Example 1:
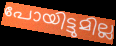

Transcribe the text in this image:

പോയിട്ടുമില്ല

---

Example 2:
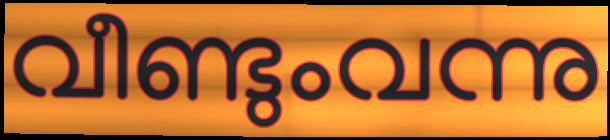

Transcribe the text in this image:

വീണ്ടുംവന്നു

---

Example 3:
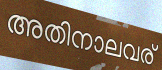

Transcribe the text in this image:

അതിനാലവര്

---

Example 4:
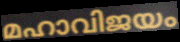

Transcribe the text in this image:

മഹാവിജയം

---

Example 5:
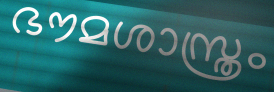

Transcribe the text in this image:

ഭൗമശാസ്ത്രം